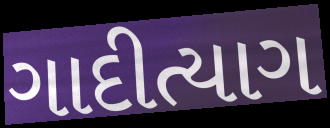
ગાદીત્યાગ